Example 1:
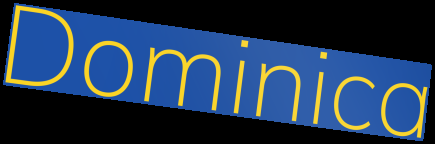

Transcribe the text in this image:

Dominica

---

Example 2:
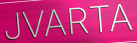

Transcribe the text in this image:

JVARTA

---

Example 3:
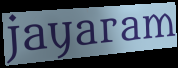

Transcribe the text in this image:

jayaram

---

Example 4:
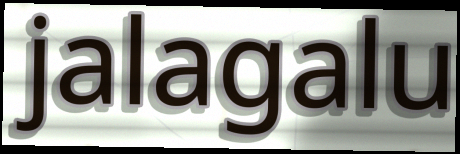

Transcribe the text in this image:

jalagalu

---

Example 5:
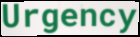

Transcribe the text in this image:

Urgency